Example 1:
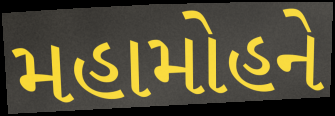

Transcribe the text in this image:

મહામોહને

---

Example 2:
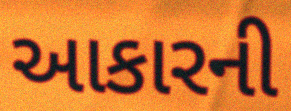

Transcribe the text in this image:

આકારની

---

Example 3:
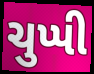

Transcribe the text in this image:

ચુપ્પી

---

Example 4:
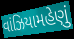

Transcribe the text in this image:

વાંઝિયામહેણું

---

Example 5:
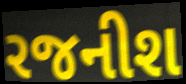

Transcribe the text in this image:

રજનીશ